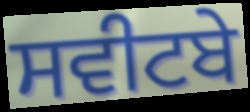
ਸਵੀਟਬੇ